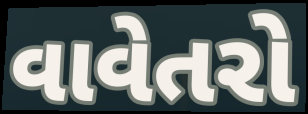
વાવેતરો